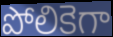
పోలికెగా